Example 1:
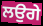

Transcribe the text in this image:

ਲਉਗੇ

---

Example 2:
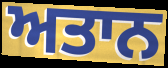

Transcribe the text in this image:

ਅਤਾਨ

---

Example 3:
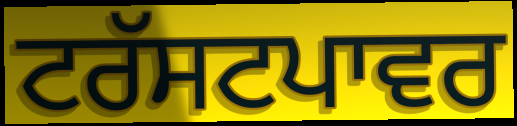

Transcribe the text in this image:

ਟਰੱਸਟਪਾਵਰ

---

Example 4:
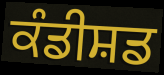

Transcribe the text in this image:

ਕੰਡੀਸ਼ਡ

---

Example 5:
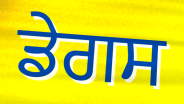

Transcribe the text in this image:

ਡੇਗਸ